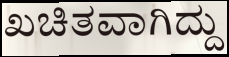
ಖಚಿತವಾಗಿದ್ದು